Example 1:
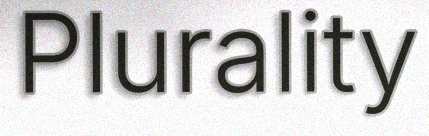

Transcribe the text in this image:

Plurality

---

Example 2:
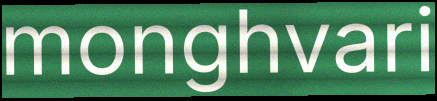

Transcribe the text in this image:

monghvari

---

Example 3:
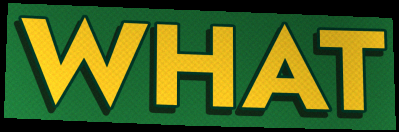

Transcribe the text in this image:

WHAT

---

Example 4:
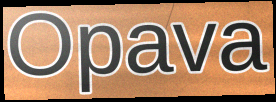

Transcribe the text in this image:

Opava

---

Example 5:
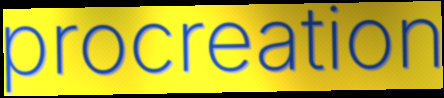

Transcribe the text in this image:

procreation